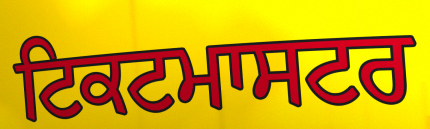
ਟਿਕਟਮਾਸਟਰ